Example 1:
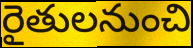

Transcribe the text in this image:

రైతులనుంచి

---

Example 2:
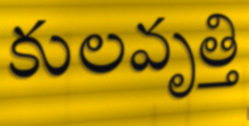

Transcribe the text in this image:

కులవృత్తి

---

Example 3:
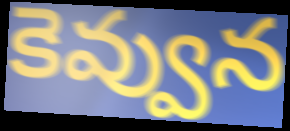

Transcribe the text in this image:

కెవ్వున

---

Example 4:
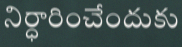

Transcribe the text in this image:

నిర్ధారించేందుకు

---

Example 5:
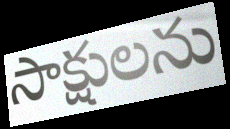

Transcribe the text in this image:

సాక్షులను